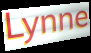
Lynne